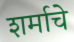
शर्माचे